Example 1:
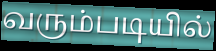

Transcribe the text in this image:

வரும்படியில்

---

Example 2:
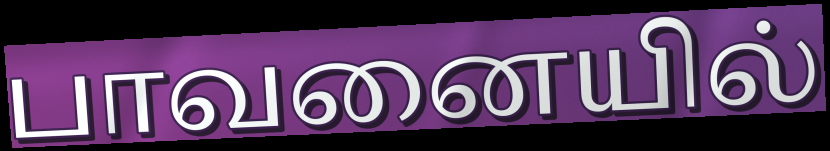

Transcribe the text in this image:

பாவனையில்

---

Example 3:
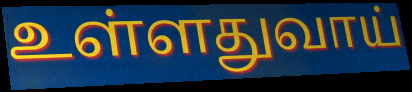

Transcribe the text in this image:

உள்ளதுவாய்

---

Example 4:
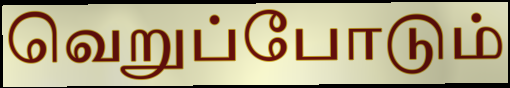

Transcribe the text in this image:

வெறுப்போடும்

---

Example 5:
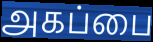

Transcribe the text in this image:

அகப்பை